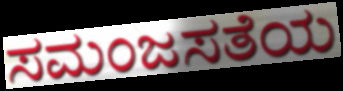
ಸಮಂಜಸತೆಯ